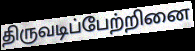
திருவடிப்பேற்றினை